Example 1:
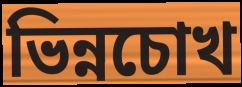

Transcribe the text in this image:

ভিন্নচোখ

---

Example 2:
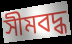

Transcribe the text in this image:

সীমবদ্ধ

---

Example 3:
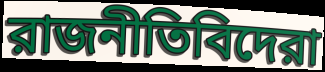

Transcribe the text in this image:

রাজনীতিবিদেরা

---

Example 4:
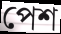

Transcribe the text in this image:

পেশ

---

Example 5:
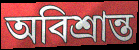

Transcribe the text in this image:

অবিশ্রান্ত